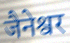
जैनेश्वर